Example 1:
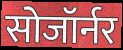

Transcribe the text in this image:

सोजॉर्नर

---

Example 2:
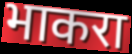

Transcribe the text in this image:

भाकरा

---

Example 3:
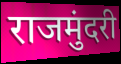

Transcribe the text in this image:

राजमुंदरी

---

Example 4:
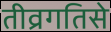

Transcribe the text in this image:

तीव्रगतिसे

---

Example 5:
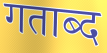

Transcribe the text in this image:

गताब्द